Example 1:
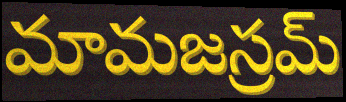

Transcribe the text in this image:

మామజస్రమ్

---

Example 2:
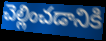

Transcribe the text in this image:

చెల్లించడానికి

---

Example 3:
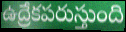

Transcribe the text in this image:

ఉద్రేకపరుస్తుంది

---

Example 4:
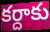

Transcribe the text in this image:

కర్దాకు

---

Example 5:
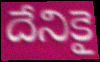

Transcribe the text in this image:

దేనికై